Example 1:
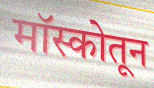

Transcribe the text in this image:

मॉस्कोतून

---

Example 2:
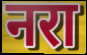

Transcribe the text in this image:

नरा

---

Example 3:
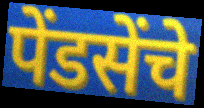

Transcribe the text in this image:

पेंडसेंचे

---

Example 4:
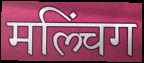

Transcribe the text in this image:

मल्चिंग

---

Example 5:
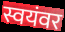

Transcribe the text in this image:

स्वयंवर